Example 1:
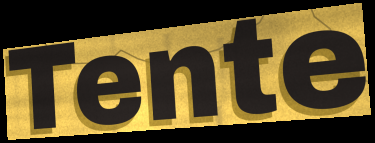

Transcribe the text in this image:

Tente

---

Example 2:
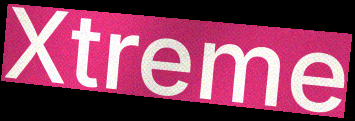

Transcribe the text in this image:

Xtreme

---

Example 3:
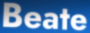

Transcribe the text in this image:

Beate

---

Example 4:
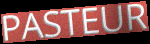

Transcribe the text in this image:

PASTEUR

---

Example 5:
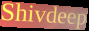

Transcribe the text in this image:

Shivdeep